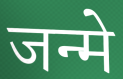
जन्मे